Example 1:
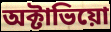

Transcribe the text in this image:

অক্টাভিয়ো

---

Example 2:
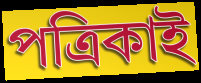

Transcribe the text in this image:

পত্রিকাই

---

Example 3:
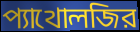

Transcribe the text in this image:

প্যাথোলজির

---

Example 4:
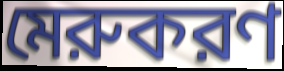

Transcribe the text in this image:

মেরুকরণ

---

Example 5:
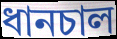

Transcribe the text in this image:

ধানচাল